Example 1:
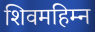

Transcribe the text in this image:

शिवमहिम्न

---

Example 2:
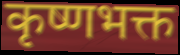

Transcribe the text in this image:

कृष्णभक्त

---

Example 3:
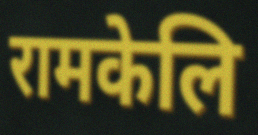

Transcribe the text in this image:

रामकेलि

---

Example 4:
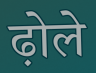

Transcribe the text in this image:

ढ़ोले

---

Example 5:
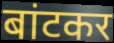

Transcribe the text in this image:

बांटकर